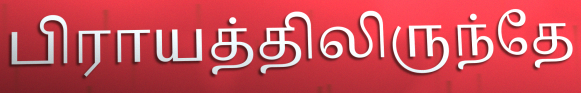
பிராயத்திலிருந்தே